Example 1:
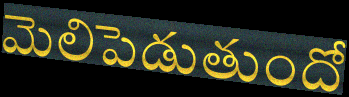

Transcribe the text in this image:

మెలిపెడుతుందో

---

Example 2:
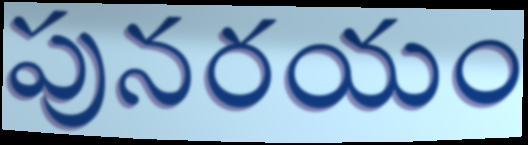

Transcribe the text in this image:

పునరయం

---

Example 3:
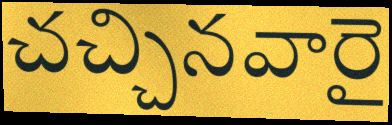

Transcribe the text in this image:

చచ్చినవారై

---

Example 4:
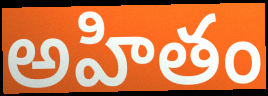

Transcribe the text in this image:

అహితం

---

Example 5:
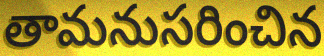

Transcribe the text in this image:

తామనుసరించిన